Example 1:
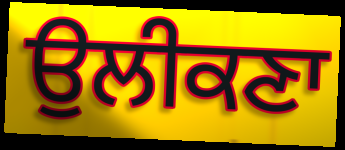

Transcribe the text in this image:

ਉਲੀਕਣਾ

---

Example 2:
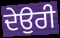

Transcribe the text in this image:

ਦੇਉਰੀ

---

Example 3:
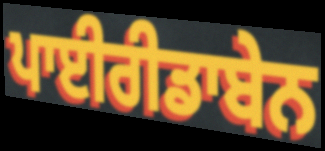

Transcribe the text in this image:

ਪਾਈਰੀਡਾਬੇਨ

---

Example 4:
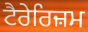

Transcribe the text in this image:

ਟੈਰੇਰਿਜ਼ਮ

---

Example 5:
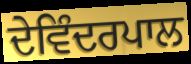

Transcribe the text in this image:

ਦੇਵਿੰਦਰਪਾਲ